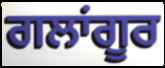
ਗਲਾਂਗੂਰ